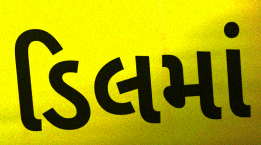
ડિલમાં